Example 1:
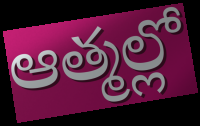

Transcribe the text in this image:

ఆత్మల్లో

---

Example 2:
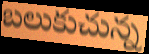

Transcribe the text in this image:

బలుకుచున్న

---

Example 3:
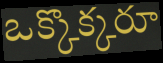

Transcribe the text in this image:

ఒక్కొక్కరూ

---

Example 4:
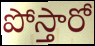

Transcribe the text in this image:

పోస్తారో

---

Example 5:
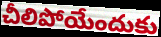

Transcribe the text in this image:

చీలిపోయేందుకు